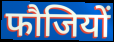
फौजियों